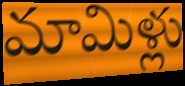
మామిళ్లు